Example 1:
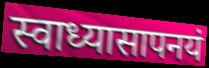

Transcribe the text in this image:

स्वाध्यासापनयं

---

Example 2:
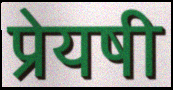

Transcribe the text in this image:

प्रेयषी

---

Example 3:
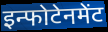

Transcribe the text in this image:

इन्फोटेनमेंट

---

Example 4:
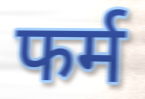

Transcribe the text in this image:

फर्म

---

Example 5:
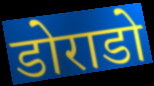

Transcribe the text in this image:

डोराडो